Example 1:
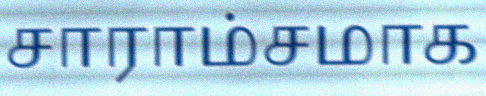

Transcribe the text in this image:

சாராம்சமாக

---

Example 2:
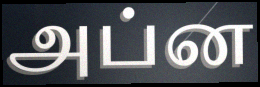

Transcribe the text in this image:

அப்ன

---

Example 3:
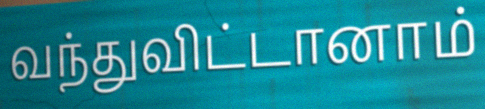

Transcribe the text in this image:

வந்துவிட்டானாம்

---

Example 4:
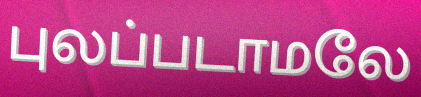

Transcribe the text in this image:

புலப்படாமலே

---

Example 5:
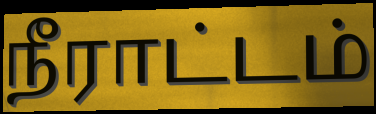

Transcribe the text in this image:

நீராட்டம்